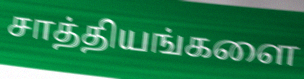
சாத்தியங்களை